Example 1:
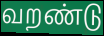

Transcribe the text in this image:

வறண்டு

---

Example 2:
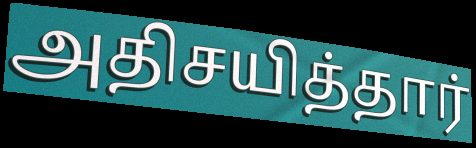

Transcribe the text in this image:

அதிசயித்தார்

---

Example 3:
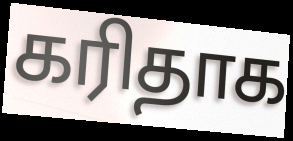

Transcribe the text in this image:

கரிதாக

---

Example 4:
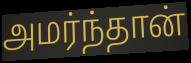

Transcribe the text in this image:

அமர்ந்தான்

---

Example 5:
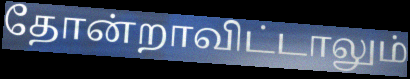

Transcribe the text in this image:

தோன்றாவிட்டாலும்